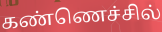
கண்ணெச்சில்